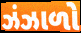
ઝંઝાળો